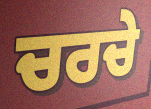
ਚਰਚੇ